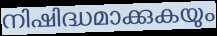
നിഷിദ്ധമാക്കുകയും